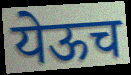
येऊच